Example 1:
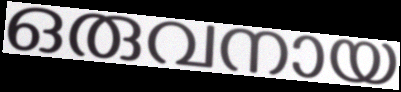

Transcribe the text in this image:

ഒരുവനായ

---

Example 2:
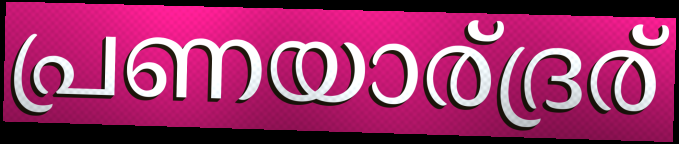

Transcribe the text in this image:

പ്രണയാര്ദ്രര്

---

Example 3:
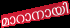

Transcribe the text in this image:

മാറാനായി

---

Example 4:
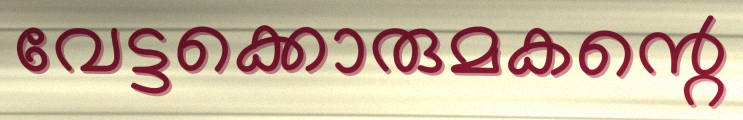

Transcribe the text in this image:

വേട്ടക്കൊരുമകന്റെ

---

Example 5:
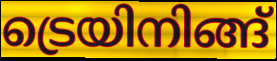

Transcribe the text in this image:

ട്രെയിനിങ്ങ്